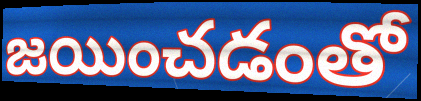
జయించడంతో